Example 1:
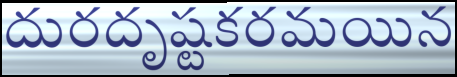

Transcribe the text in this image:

దురదృష్టకరమయిన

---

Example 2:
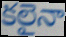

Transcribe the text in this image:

కలైనా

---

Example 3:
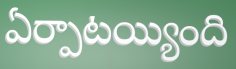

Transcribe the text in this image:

ఏర్పాటయ్యింది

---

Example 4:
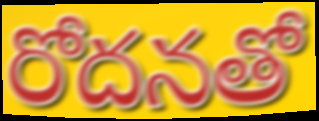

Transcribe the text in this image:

రోదనతో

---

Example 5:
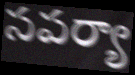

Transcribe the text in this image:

సపర్యా